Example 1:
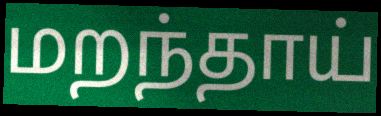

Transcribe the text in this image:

மறந்தாய்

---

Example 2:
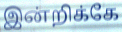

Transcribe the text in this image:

இன்றிக்கே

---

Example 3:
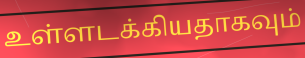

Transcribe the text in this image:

உள்ளடக்கியதாகவும்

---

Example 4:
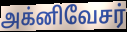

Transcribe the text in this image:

அக்னிவேசர்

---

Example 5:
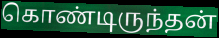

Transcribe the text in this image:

கொண்டிருந்தன்